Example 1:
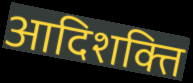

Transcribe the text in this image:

आदिशक्ति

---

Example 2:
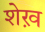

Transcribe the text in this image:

शेख़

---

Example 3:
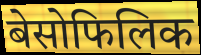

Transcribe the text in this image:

बेसोफिलिक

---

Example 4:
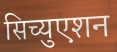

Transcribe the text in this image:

सिच्युएशन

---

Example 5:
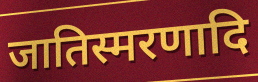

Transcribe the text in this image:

जातिस्मरणादि